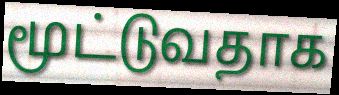
மூட்டுவதாக